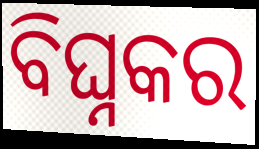
ବିଘ୍ନକର